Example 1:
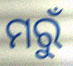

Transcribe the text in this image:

ମରୁଁ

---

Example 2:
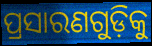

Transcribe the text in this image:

ପ୍ରସାରଣଗୁଡ଼ିକୁ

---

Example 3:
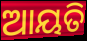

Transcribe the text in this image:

ଆୟତି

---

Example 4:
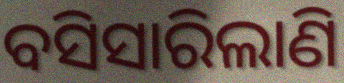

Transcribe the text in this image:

ବସିସାରିଲାଣି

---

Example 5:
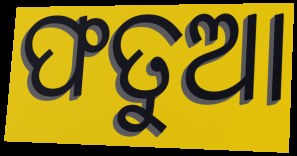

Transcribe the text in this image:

ଫତୁଆ